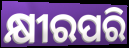
କ୍ଷୀରପରି